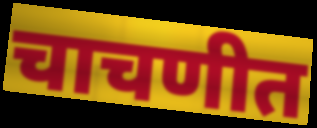
चाचणीत